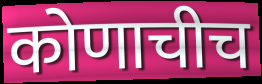
कोणाचीच